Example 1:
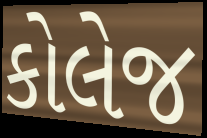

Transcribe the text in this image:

કોલેજ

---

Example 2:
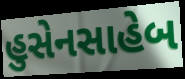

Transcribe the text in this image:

હુસેનસાહેબ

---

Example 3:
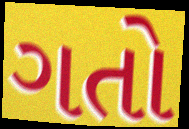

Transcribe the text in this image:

ગતો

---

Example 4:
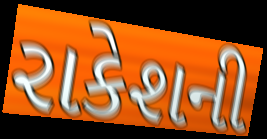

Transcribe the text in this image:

રાકેશની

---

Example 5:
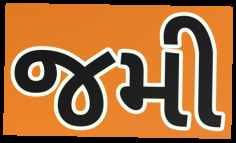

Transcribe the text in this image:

જમી